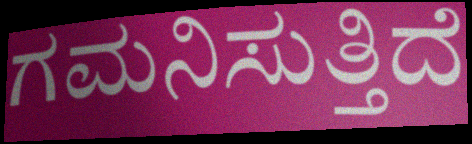
ಗಮನಿಸುತ್ತಿದೆ